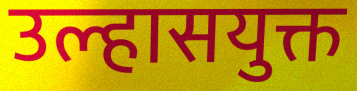
उल्हासयुक्त